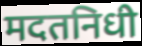
मदतनिधी